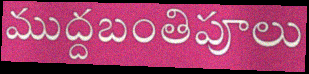
ముద్దబంతిపూలు